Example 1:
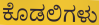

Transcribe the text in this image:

ಕೊಡಲಿಗಳು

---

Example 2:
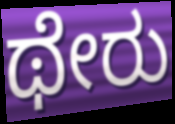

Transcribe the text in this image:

ಥೇರು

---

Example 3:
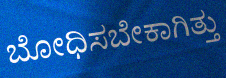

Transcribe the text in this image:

ಬೋಧಿಸಬೇಕಾಗಿತ್ತು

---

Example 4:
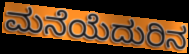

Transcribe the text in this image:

ಮನೆಯೆದುರಿನ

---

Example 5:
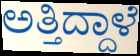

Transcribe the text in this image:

ಅತ್ತಿದ್ದಾಳೆ